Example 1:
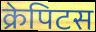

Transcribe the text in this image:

क्रेपिटस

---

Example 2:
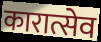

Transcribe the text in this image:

कारात्सेव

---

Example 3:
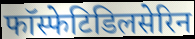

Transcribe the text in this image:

फॉस्फेटिडिलसेरिन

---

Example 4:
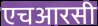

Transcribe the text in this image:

एचआरसी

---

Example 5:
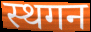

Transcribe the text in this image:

स्थगन